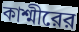
কাশ্মীরের